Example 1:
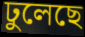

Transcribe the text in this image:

ঢুলেছে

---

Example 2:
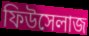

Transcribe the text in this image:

ফিউসেলাজ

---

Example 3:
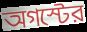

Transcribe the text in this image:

অগস্টের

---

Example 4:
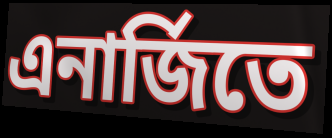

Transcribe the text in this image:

এনার্জিতে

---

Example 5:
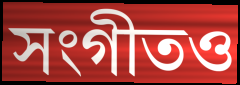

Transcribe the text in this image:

সংগীতও